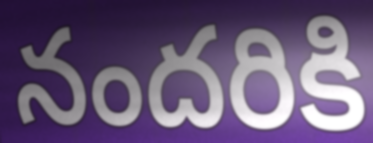
నందరికి